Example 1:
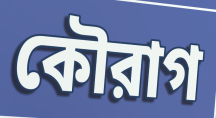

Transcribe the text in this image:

কৌরাগ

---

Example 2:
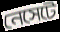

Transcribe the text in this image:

নেসেটে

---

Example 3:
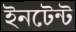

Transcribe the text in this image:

ইনটেন্ট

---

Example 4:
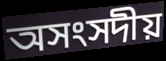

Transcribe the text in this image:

অসংসদীয়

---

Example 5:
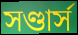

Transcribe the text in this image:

সণ্ডার্স